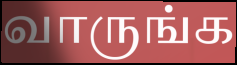
வாருங்க